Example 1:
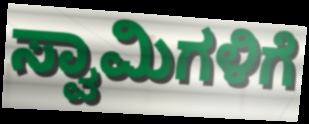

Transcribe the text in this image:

ಸ್ವಾಮಿಗಳಿಗೆ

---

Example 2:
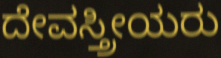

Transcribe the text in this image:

ದೇವಸ್ತ್ರೀಯರು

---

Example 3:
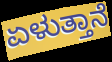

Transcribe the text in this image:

ಏಳುತ್ತಾನೆ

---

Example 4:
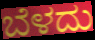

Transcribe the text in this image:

ಬೆಳದು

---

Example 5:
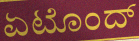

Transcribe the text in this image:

ಏಟೊಂದ್